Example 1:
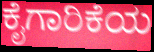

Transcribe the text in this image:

ಕೈಗಾರಿಕೆಯ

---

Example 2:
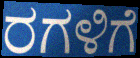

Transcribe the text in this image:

ರಗಳಿಗೆ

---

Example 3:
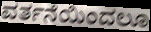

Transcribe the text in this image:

ವರ್ತನೆಯಿಂದಲೂ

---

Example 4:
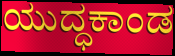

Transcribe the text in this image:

ಯುದ್ಧಕಾಂಡ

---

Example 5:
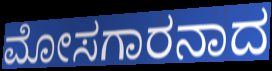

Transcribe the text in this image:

ಮೋಸಗಾರನಾದ